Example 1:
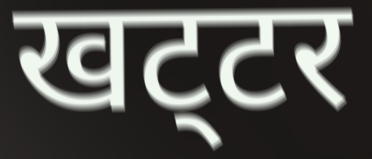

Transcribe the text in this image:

खट्‌टर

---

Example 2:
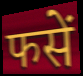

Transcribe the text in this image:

फसें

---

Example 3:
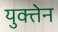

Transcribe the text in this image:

युक्तेन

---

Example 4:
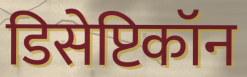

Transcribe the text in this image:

डिसेप्टिकॉन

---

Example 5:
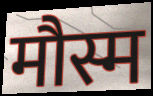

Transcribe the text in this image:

मौस्म